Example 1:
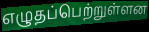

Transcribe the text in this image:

எழுதப்பெற்றுள்ளன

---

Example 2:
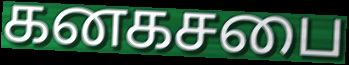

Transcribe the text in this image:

கனகசபை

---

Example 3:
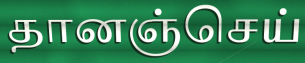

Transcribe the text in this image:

தானஞ்செய்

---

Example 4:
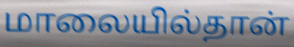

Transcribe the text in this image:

மாலையில்தான்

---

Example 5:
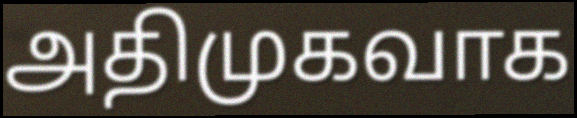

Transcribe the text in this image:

அதிமுகவாக